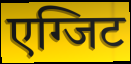
एग्जिट